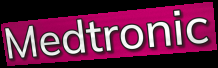
Medtronic